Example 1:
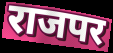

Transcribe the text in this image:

राजपर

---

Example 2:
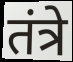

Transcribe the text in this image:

तंत्रे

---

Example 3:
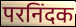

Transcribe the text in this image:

परनिंदक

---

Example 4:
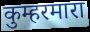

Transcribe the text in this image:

कुम्हरमारा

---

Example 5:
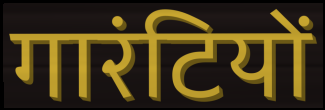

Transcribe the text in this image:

गारंटियों